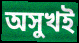
অসুখই